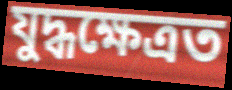
যুদ্ধক্ষেত্ৰত